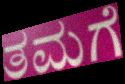
ತಮಗೆ